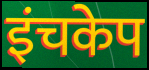
इंचकेप